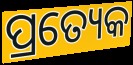
ପ୍ରତ୍ୟେକ